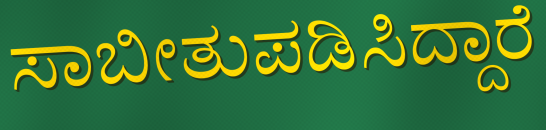
ಸಾಬೀತುಪಡಿಸಿದ್ದಾರೆ